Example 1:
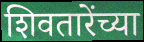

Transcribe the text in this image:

शिवतारेंच्या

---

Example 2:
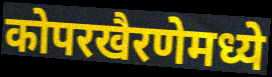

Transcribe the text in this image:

कोपरखैरणेमध्ये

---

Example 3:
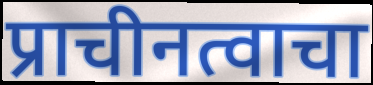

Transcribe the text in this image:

प्राचीनत्वाचा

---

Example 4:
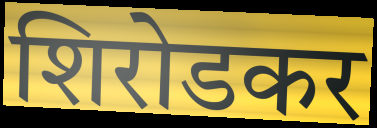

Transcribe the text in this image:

शिरोडकर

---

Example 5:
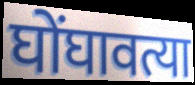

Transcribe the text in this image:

घोंघावत्या